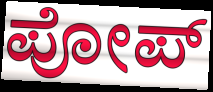
ಪೋಪ್